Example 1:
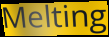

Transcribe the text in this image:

Melting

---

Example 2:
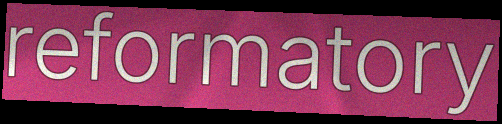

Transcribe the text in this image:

reformatory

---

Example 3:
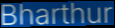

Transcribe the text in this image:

Bharthur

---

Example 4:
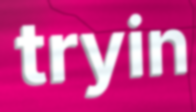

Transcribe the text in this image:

tryin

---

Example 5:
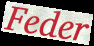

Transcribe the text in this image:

Feder